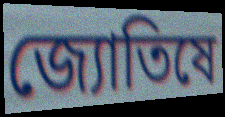
জ্যোতিষে